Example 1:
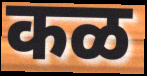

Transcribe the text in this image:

कळ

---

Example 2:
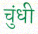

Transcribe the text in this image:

चुंधी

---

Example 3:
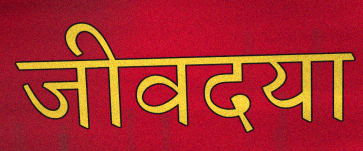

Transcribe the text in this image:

जीवदया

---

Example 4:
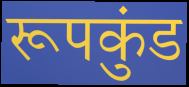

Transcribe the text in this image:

रूपकुंड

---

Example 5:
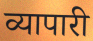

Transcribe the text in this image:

व्यापारी